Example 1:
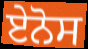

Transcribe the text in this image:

ਏਨੋਸ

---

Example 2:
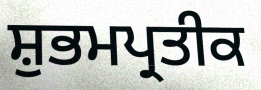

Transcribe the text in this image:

ਸ਼ੁਭਮਪ੍ਰਤੀਕ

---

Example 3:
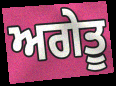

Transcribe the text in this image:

ਅਗੇਤੂ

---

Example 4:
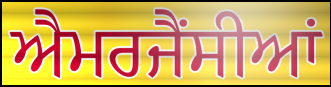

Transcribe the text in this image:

ਐਮਰਜੈਂਸੀਆਂ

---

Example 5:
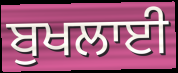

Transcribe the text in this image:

ਬੁਖਲਾਈ